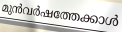
മുൻവർഷത്തേക്കാൾ